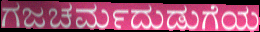
ಗಜಚರ್ಮದುಡುಗೆಯ